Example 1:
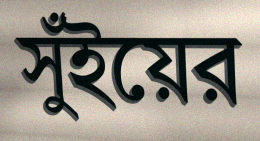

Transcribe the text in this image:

সুঁইয়ের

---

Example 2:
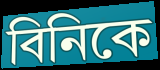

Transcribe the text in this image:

বিনিকে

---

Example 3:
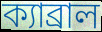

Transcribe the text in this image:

ক্যাব্রাল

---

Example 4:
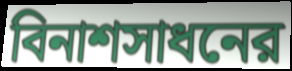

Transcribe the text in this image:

বিনাশসাধনের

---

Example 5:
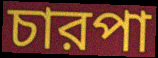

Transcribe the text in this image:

চারপা